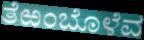
ತೆಱಂಬೊಳೆವ